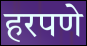
हरपणे